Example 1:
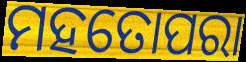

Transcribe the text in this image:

ମହତୋପରା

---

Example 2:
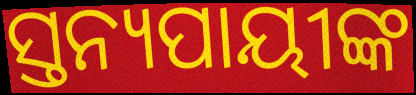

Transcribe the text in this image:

ସ୍ତନ୍ୟପାୟୀଙ୍କ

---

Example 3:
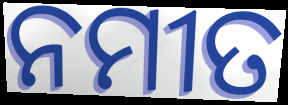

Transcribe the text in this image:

ନମୀତ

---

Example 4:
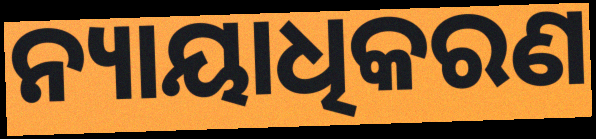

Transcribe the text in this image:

ନ୍ୟାୟାଧିକରଣ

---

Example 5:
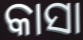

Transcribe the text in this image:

କାସା